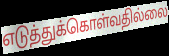
எடுத்துக்கொள்வதில்லை